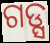
ଗଡ୍ସ